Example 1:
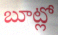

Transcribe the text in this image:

బూట్లో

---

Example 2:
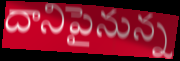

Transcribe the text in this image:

దానిపైనున్న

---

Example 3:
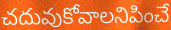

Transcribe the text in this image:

చదువుకోవాలనిపించే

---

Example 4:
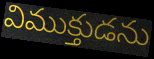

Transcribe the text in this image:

విముక్తుడను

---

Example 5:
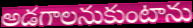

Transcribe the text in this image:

అడగాలనుకుంటాను